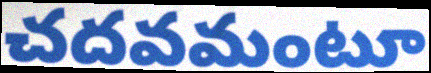
చదవమంటూ